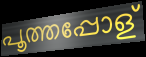
പൂത്തപ്പോള്